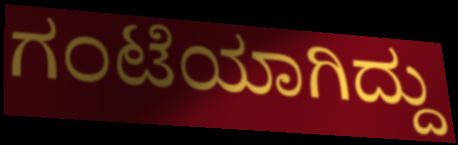
ಗಂಟೆಯಾಗಿದ್ದು